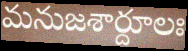
మనుజశార్దూలః